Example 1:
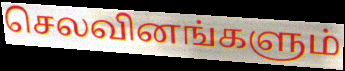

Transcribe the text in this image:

செலவினங்களும்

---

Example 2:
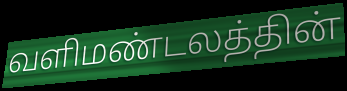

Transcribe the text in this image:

வளிமண்டலத்தின்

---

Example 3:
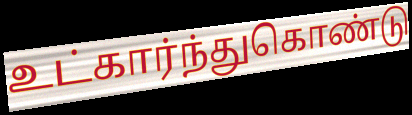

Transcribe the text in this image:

உட்கார்ந்துகொண்டு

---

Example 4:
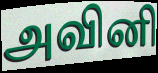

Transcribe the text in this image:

அவினி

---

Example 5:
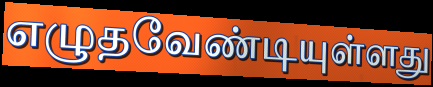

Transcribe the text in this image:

எழுதவேண்டியுள்ளது